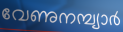
വേണുനമ്പ്യാർ